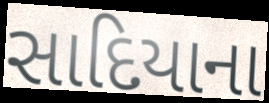
સાદિયાના